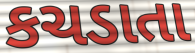
કચડાતા